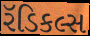
રૅડિકલ્સ